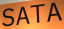
SATA